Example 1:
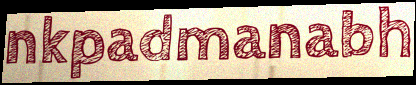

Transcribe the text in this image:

nkpadmanabh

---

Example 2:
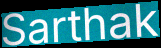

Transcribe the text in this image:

Sarthak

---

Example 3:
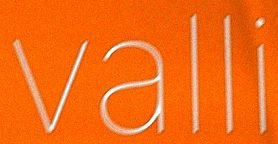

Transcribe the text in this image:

valli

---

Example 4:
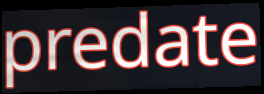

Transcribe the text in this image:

predate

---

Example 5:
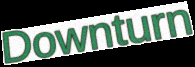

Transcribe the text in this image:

Downturn